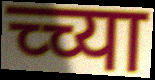
च्च्या